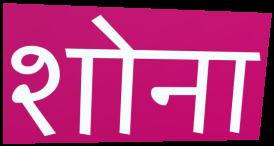
शोना